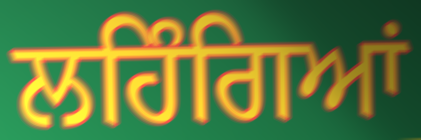
ਲਹਿੰਗਿਆਂ